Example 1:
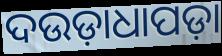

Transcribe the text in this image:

ଦଉଡ଼ାଧାପଡ଼ା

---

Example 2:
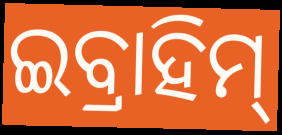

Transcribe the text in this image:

ଇବ୍ରାହିମ୍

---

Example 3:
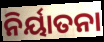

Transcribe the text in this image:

ନିର୍ୟାତନା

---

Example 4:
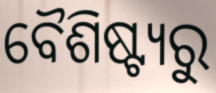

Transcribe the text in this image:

ବୈଶିଷ୍ଟ୍ୟରୁ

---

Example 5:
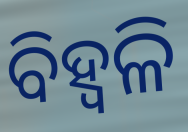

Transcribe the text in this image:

ବିହ୍ୱଳି